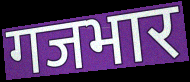
गजभार